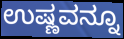
ಉಷ್ಣವನ್ನೂ